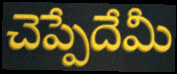
చెప్పేదేమీ